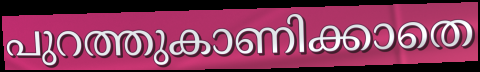
പുറത്തുകാണിക്കാതെ